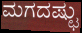
ಮಗದಷ್ಟು